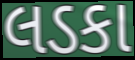
લડકા